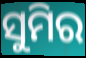
ସୁମିର